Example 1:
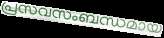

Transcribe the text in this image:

പ്രസവസംബന്ധമായ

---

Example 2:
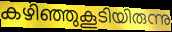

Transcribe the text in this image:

കഴിഞ്ഞുകൂടിയിരുന്നു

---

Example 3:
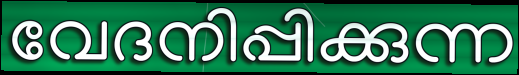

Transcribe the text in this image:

വേദനിപ്പിക്കുന്ന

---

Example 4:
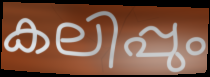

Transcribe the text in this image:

കലിപ്പും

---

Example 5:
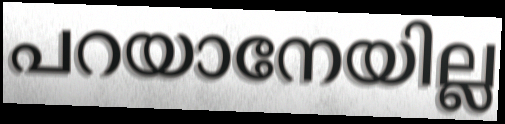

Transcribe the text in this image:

പറയാനേയില്ല